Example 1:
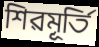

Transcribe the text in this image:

শিৱমূৰ্তি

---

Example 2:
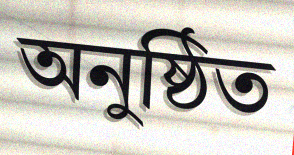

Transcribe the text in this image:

অনুষ্ঠিত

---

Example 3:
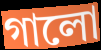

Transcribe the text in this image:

গালো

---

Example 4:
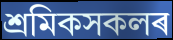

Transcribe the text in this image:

শ্ৰমিকসকলৰ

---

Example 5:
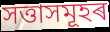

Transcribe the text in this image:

সত্তাসমূহৰ